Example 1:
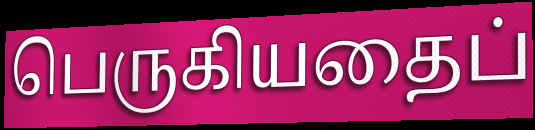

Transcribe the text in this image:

பெருகியதைப்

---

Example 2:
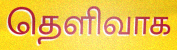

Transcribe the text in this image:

தெளிவாக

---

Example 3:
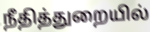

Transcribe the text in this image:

நீதித்துறையில்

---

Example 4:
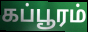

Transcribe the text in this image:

கப்பூரம்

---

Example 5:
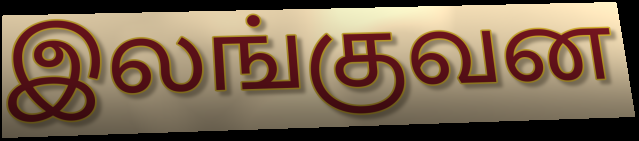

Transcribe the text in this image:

இலங்குவன